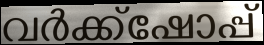
വർക്ക്ഷോപ്പ്